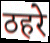
ठहरे